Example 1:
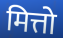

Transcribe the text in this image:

मित्तो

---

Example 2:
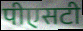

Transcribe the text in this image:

पीएसटी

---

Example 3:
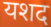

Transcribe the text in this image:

यशद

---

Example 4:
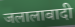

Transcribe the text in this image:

जलालाबादी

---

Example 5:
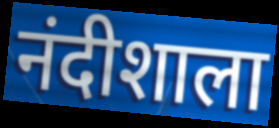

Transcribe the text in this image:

नंदीशाला